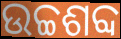
ଉଚ୍ଚଶବ୍ଦ